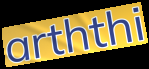
arththi